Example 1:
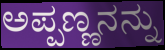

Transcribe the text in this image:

ಅಪ್ಪಣ್ಣನನ್ನು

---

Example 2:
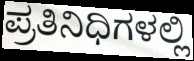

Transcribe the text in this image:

ಪ್ರತಿನಿಧಿಗಳಲ್ಲಿ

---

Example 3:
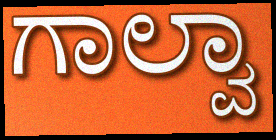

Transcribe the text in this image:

ಗಾಲ್ವಾ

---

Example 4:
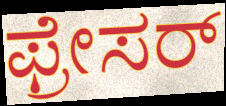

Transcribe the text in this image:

ಫ್ರೇಸರ್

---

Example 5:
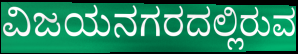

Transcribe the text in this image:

ವಿಜಯನಗರದಲ್ಲಿರುವ